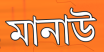
মানাউ